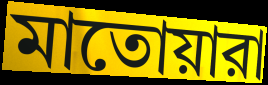
মাতোয়ারা